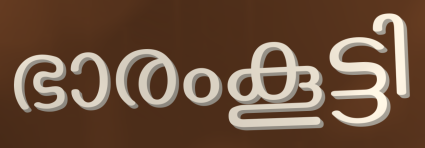
ഭാരംകൂട്ടി